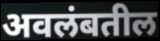
अवलंबतील